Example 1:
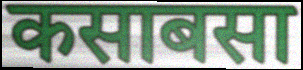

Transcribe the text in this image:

कसाबसा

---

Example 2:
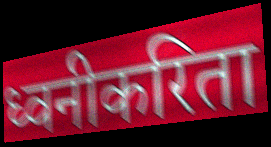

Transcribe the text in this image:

ध्वनीकरिता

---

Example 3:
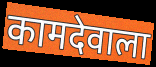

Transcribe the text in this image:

कामदेवाला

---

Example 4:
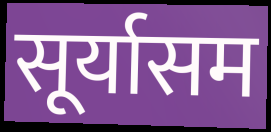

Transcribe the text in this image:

सूर्यासम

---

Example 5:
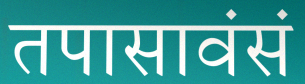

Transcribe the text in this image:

तपासावंसं